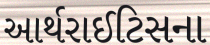
આર્થરાઈટિસના